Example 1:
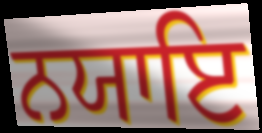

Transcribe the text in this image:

ਨਯਾਇ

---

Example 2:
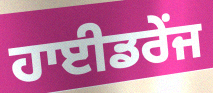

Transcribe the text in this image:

ਹਾਈਡਰੇਂਜ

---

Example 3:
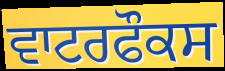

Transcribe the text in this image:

ਵਾਟਰਫੌਕਸ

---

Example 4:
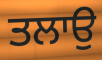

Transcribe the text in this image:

ਤਲਾਉ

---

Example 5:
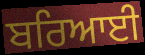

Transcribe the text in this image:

ਬਰਿਆਈ